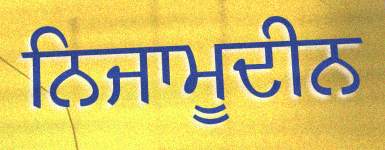
ਨਿਜਾਮੂਦੀਨ